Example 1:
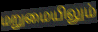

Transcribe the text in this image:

மறுமையிலும்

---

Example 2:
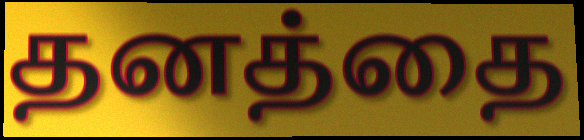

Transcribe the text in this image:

தனத்தை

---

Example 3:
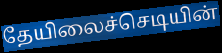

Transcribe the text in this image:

தேயிலைச்செடியின்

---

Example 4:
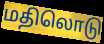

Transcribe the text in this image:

மதிலொடு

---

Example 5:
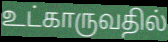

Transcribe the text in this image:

உட்காருவதில்